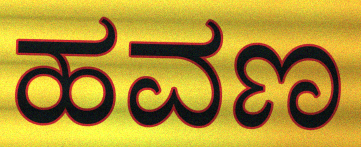
ಹವಣ